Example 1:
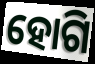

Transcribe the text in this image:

ହୋଗି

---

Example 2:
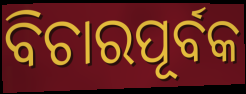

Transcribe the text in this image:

ବିଚାରପୂର୍ବକ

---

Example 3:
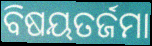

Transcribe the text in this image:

ବିଷୟତର୍ଜମା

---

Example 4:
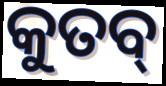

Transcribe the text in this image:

କୁତବ୍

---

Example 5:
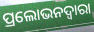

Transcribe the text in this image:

ପ୍ରଲୋଭନଦ୍ୱାରା